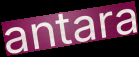
antara